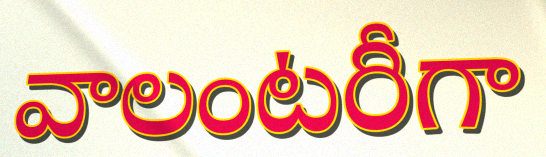
వాలంటరీగా